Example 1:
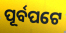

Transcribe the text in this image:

ପୂର୍ବପଟେ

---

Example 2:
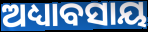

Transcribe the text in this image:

ଅଧ୍ୟାବସାୟ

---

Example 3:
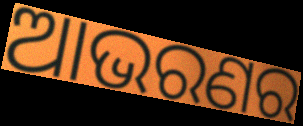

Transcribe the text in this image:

ଆଭରଣର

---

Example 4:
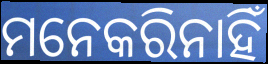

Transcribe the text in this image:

ମନେକରିନାହିଁ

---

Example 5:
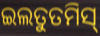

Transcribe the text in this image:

ଇଲତୁତମିସ୍